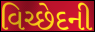
વિચ્છેદની